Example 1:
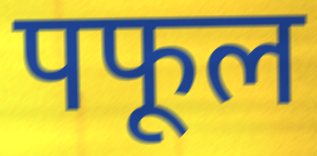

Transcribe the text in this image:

पफूल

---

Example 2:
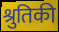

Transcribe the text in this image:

श्रुतिकी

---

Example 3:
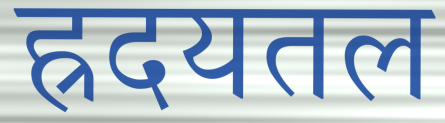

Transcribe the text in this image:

ह्रदयतल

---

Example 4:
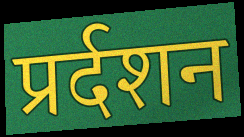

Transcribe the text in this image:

प्रर्दशन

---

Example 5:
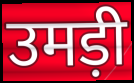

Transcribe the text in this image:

उमड़ी